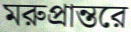
মরুপ্রান্তরে